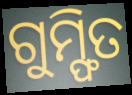
ଗୁମ୍ଫିତ